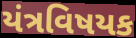
યંત્રવિષયક